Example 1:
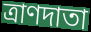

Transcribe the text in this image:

ত্রাণদাতা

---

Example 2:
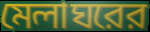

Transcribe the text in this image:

মেলাঘরের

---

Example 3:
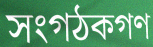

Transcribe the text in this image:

সংগঠকগণ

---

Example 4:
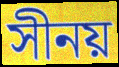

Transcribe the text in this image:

সীনয়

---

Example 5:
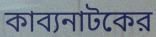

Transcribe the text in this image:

কাব্যনাটকের